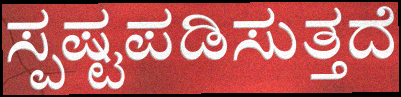
ಸ್ಪಷ್ಟಪಡಿಸುತ್ತದೆ